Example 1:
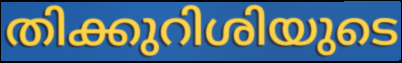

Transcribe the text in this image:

തിക്കുറിശിയുടെ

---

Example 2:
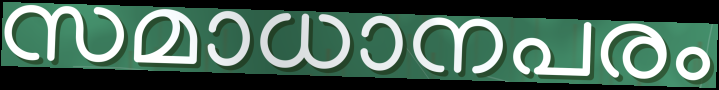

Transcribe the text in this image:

സമാധാനപരം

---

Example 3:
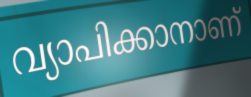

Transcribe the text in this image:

വ്യാപിക്കാനാണ്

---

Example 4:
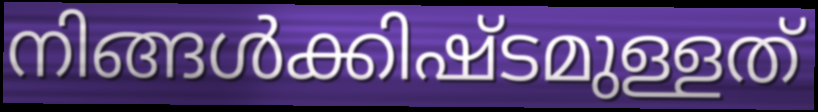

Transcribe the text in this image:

നിങ്ങൾക്കിഷ്ടമുള്ളത്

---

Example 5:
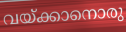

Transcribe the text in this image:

വയ്ക്കാനൊരു